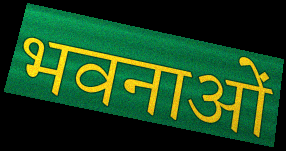
भवनाओं